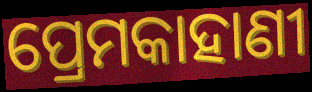
ପ୍ରେମକାହାଣୀ